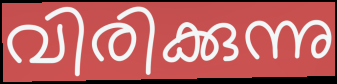
വിരിക്കുന്നു